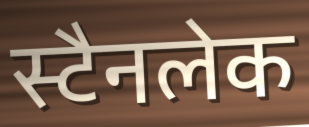
स्टैनलेक